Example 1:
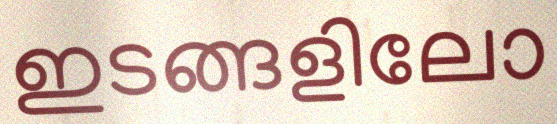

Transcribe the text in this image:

ഇടങ്ങളിലോ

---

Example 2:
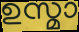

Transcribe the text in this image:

ഉസ്മാ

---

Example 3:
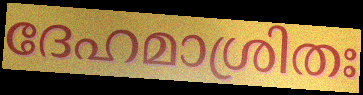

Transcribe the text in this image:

ദേഹമാശ്രിതഃ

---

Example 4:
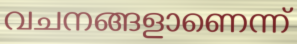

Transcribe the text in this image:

വചനങ്ങളാണെന്ന്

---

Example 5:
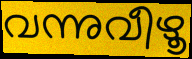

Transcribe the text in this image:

വന്നുവീഴൂ